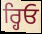
ਰ੍ਹਿਓ